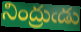
నింద్రుఁడు